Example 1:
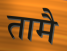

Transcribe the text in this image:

तामै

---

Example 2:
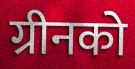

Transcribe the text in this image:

ग्रीनको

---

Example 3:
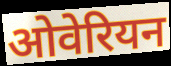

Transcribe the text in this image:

ओवेरियन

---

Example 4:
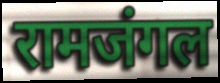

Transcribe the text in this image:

रामजंगल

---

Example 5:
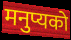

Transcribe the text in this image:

मनुप्यको